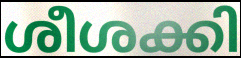
ശീശക്കി